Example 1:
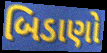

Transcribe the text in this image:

બિડાણો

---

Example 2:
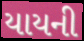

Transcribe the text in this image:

યાયની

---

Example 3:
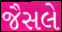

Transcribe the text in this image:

જૈસલે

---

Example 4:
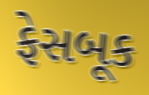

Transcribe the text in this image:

ફેસબૂક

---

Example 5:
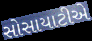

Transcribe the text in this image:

સોસાયાટીએ